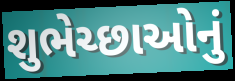
શુભેચ્છાઓનું